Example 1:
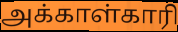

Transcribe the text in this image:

அக்காள்காரி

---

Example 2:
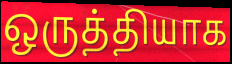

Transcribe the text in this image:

ஒருத்தியாக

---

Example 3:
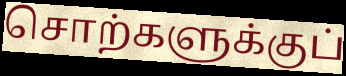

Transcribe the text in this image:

சொற்களுக்குப்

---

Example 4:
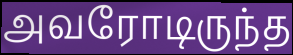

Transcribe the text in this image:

அவரோடிருந்த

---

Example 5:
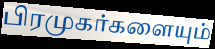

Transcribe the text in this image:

பிரமுகர்களையும்